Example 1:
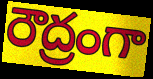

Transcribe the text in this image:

రౌద్రంగా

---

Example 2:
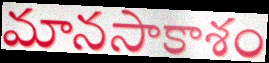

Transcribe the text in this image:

మానసాకాశం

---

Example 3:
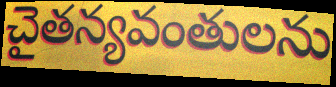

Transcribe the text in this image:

చైతన్యవంతులను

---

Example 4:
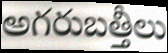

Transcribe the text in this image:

అగరుబత్తీలు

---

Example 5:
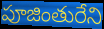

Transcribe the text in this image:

పూజింతురేని